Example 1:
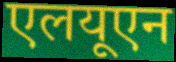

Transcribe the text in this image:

एलयूएन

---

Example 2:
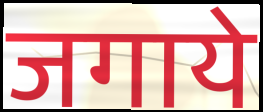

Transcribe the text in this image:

जगाये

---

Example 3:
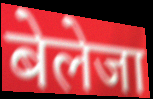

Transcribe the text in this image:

बेलेजा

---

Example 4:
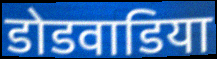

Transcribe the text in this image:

डोडवाडिया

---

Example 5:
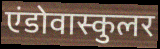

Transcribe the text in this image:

एंडोवास्कुलर